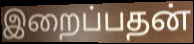
இறைப்பதன்